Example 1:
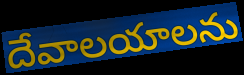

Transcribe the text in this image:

దేవాలయాలను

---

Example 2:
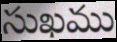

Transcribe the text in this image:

సుఖము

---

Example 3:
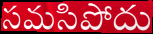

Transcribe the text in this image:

సమసిపోదు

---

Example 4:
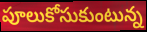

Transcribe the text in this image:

పూలుకోసుకుంటున్న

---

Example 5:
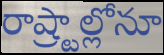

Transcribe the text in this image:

రాష్ర్టాల్లోనూ